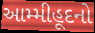
આમ્મીહૂદનો